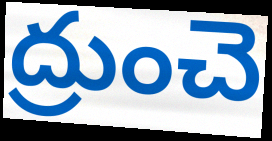
ద్రుంచె